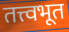
तत्त्वभूत